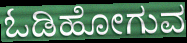
ಓಡಿಹೋಗುವ